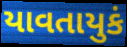
યાવતાયુકં